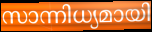
സാന്നിധ്യമായി